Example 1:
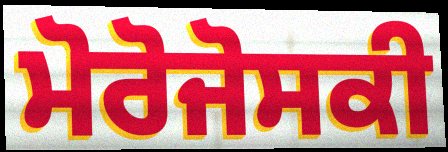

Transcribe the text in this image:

ਮੋਰੋਜੋਸਕੀ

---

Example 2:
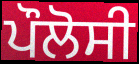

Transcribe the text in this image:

ਪੌਲੋਸੀ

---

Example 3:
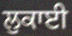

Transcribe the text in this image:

ਲੁਕਾਈ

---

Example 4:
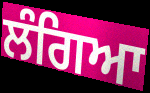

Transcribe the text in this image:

ਲੰਗਿਆ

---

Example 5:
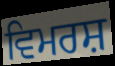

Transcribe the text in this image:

ਵਿਮਰਸ਼